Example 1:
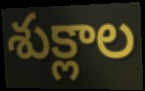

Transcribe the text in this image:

శుక్లాల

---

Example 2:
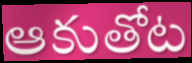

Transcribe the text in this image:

ఆకుతోట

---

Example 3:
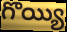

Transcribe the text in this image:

గొయ్యి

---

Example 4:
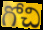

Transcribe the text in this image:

గోచి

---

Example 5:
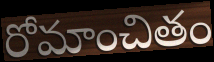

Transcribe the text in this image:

రోమాంచితం